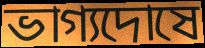
ভাগ্যদোষে